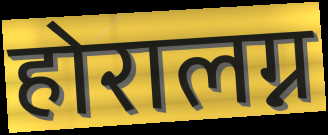
होरालग्न